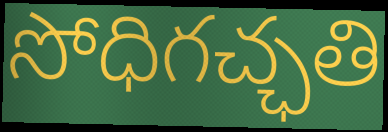
సోధిగచ్ఛతి